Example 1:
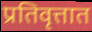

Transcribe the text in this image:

प्रतिवृत्तात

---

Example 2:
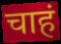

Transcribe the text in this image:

चाहं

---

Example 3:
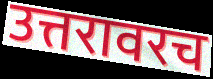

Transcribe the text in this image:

उत्तरावरच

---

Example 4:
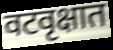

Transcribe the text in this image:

वटवृक्षात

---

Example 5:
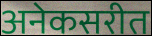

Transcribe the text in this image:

अनेकसरीत